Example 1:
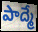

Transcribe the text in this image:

పాద్మే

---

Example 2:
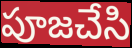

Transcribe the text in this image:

పూజచేసి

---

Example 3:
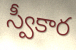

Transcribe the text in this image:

స్వీకార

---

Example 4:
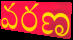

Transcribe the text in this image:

వరణ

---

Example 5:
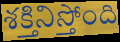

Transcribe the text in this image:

శక్తినిస్తోంది